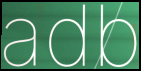
adb